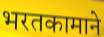
भरतकामाने